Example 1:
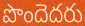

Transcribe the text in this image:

పొందెదరు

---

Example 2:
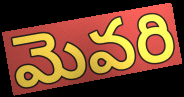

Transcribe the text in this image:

మెవరి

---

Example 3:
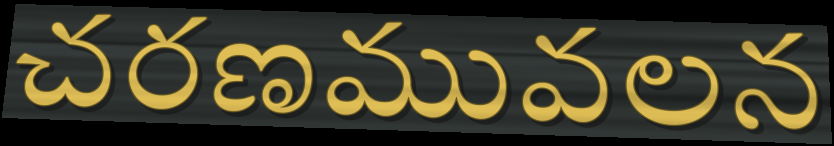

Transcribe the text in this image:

చరణమువలన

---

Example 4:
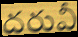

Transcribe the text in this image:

దరువీ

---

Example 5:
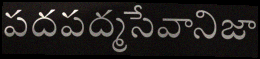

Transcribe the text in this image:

పదపద్మసేవానిజా